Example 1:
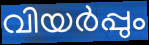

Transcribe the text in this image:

വിയർപ്പും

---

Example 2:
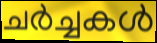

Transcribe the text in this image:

ചർച്ചകൾ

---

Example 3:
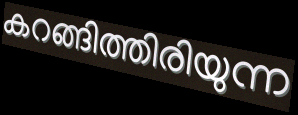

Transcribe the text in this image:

കറങ്ങിത്തിരിയുന്ന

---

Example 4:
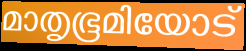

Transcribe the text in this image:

മാതൃഭൂമിയോട്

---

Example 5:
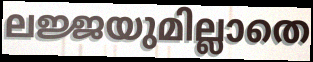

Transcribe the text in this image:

ലജ്ജയുമില്ലാതെ